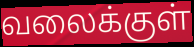
வலைக்குள்